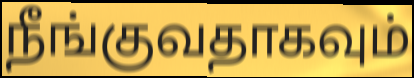
நீங்குவதாகவும்